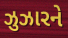
ઝુઝારને